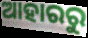
ଆହାରରୁ